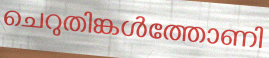
ചെറുതിങ്കൾത്തോണി